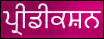
ਪ੍ਰੀਡੀਕਸ਼ਨ